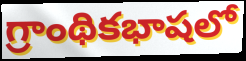
గ్రాంథికభాషలో